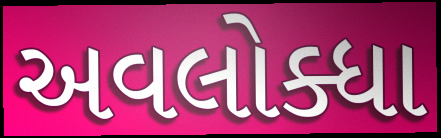
અવલોક્ધા